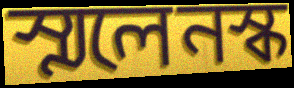
স্মলেনস্ক